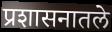
प्रशासनातले